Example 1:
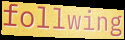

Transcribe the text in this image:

follwing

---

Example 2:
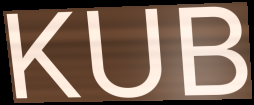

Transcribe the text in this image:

KUB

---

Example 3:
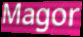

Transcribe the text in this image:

Magor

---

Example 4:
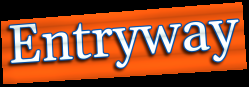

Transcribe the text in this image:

Entryway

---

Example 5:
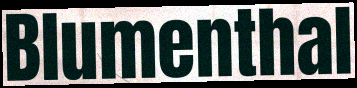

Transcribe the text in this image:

Blumenthal